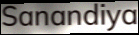
Sanandiya